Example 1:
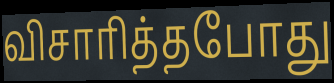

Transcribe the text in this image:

விசாரித்தபோது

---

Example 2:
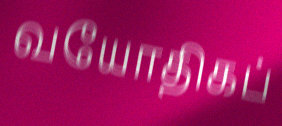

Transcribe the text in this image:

வயோதிகப்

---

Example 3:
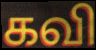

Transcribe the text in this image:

கவி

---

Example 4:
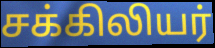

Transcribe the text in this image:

சக்கிலியர்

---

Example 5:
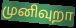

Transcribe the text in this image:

முனிவுறா